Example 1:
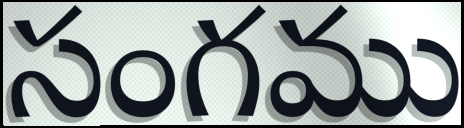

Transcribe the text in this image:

సంగము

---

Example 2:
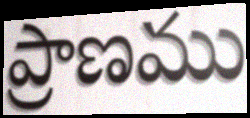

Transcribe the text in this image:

ప్రాణము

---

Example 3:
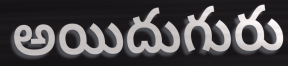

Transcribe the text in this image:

అయిదుగురు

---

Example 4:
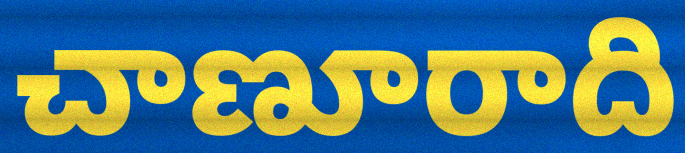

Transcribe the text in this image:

చాణూరాది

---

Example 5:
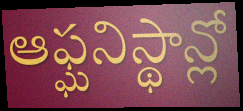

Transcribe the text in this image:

ఆఫ్ఘనిస్థాన్లో